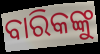
ବାରିକଙ୍କୁ